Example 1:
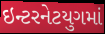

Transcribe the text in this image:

ઇન્ટરનેટયુગમાં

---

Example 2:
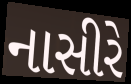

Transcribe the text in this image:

નાસીરે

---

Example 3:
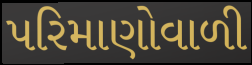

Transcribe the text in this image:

પરિમાણોવાળી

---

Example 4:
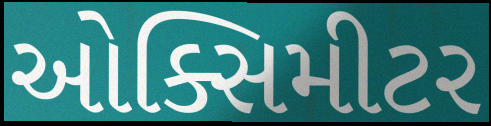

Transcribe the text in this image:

ઓક્સિમીટર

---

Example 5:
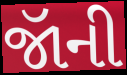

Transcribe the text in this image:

જૉની